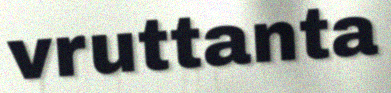
vruttanta